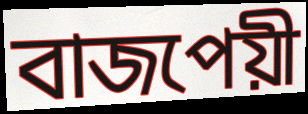
বাজপেয়ী